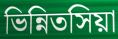
ভিন্নিতসিয়া